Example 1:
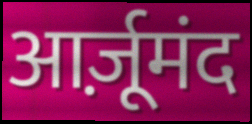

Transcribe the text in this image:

आर्ज़ूमंद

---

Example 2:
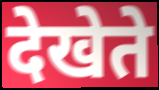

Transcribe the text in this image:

देखेते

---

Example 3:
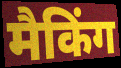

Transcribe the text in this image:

मैकिंग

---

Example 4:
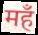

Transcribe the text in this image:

महँ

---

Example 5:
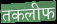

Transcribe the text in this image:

तकलीफ